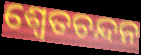
ଶ୍ୱେତଚନ୍ଦନ